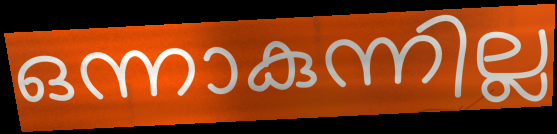
ഒന്നാകുന്നില്ല